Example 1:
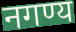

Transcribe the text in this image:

नगण्य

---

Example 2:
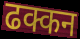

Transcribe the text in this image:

ढक्कन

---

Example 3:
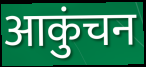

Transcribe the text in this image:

आकुंचन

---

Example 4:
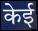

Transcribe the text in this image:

केई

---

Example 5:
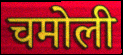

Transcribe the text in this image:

चमोली